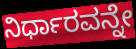
ನಿರ್ಧಾರವನ್ನೇ